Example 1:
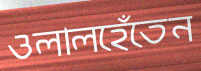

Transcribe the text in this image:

ওলালহেঁতেন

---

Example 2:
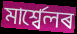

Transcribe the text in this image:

মাৰ্শ্বেলৰ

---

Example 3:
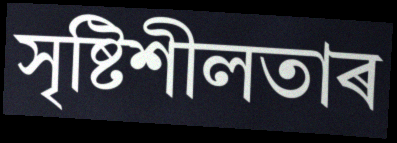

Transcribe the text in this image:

সৃষ্টিশীলতাৰ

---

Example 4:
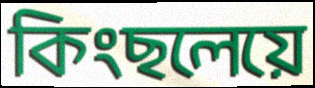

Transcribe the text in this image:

কিংছলেয়ে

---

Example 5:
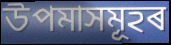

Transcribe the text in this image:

উপমাসমূহৰ